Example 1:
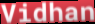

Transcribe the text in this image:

Vidhan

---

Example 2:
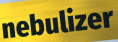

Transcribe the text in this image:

nebulizer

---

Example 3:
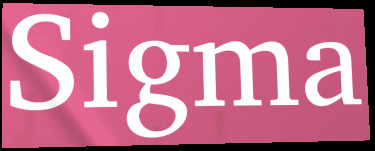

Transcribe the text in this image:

Sigma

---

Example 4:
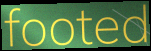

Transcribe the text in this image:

footed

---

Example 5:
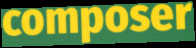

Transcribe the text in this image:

composer